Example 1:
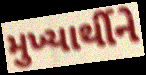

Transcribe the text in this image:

મુખ્યાર્થીને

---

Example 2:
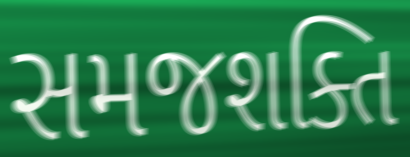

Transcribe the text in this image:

સમજશક્તિ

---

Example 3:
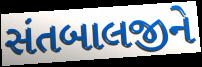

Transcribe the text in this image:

સંતબાલજીને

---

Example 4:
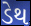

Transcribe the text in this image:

ડેથ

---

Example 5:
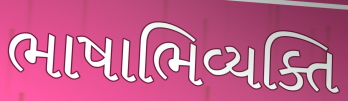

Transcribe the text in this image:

ભાષાભિવ્યક્તિ